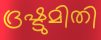
ദ്രഷ്ടുമിതി